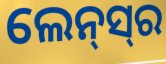
ଲେନ୍‌ସ୍‍ର